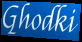
Ghodki